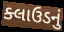
ક્લાઉડનું